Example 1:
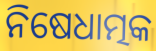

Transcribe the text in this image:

ନିଷେଧାତ୍ମକ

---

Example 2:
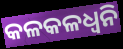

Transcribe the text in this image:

କଳକଳଧ୍ଵନି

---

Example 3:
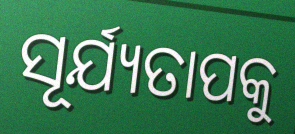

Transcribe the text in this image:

ସୂର୍ଯ୍ୟତାପକୁ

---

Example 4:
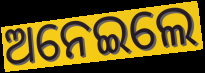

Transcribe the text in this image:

ଅନେଇଲେ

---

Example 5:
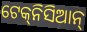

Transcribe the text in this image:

ଟେକ୍‌ନିସିଆନ୍